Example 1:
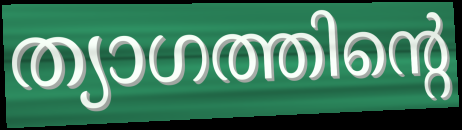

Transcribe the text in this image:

ത്യാഗത്തിന്റെ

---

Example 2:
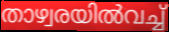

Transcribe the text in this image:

താഴ്വരയിൽവച്ച്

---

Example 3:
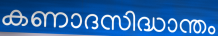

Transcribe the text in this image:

കണാദസിദ്ധാന്തം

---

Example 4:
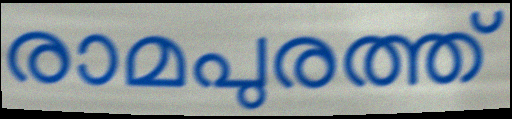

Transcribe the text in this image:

രാമപുരത്ത്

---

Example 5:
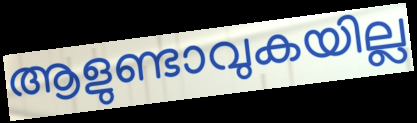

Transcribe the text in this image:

ആളുണ്ടാവുകയില്ല